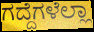
ಗದ್ದೆಗಳೆಲ್ಲಾ